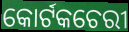
କୋର୍ଟକଚେରୀ